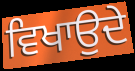
ਵਿਖਾਉਦੇ